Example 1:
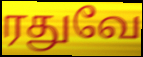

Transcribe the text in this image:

ரதுவே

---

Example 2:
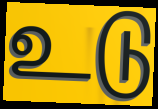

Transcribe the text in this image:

உடு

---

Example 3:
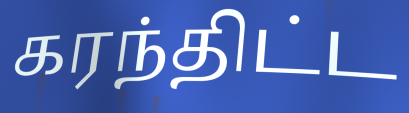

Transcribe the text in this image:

கரந்திட்ட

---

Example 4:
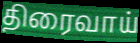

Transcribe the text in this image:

திரைவாய்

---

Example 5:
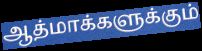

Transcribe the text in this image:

ஆத்மாக்களுக்கும்